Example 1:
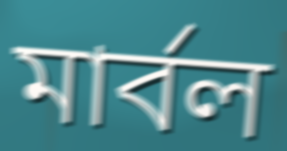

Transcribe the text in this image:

মাৰ্বল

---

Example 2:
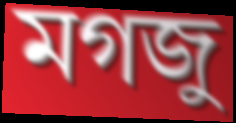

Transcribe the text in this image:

মগজু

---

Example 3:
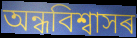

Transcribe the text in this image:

অন্ধবিশ্বাসৰ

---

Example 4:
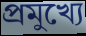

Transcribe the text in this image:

প্ৰমুখ্যে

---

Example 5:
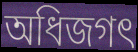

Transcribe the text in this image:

অধিজগৎ